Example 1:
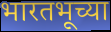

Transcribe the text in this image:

भारतभूच्या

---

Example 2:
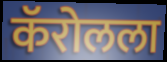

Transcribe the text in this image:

कॅरोलला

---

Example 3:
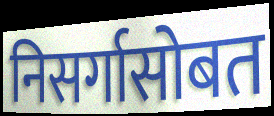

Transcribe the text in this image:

निसर्गासोबत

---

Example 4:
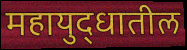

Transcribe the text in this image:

महायुद्धातील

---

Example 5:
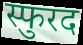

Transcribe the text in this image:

स्फुरद